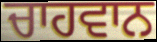
ਚਾਹਵਾਨ